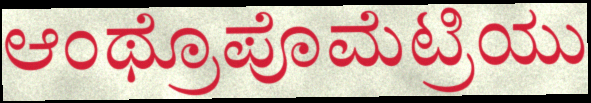
ಆಂಥ್ರೊಪೊಮೆಟ್ರಿಯು